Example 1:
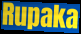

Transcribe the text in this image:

Rupaka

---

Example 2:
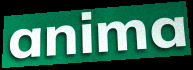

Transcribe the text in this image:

anima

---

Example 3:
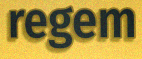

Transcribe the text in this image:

regem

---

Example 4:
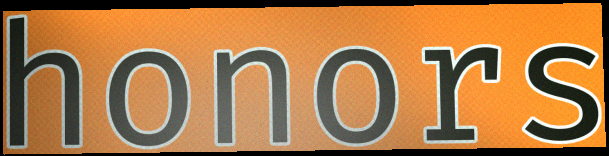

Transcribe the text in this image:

honors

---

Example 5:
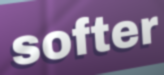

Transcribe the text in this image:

softer